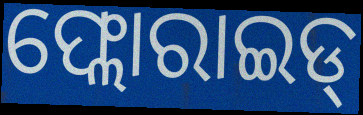
ଫ୍ଲୋରାଇଡ୍